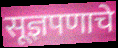
सूज्ञपणाचे